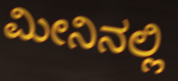
ಮೀನಿನಲ್ಲಿ